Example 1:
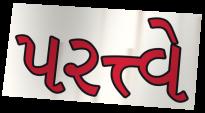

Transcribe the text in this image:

પરત્ત્વે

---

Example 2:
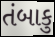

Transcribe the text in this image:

તંબાકુ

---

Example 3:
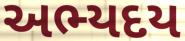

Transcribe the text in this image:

અભ્યદય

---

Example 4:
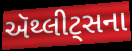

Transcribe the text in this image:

ઍથ્લીટ્સના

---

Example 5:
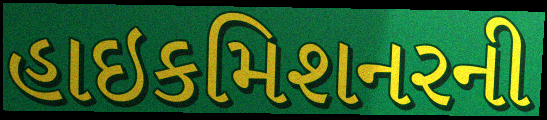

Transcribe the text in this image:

હાઇકમિશનરની